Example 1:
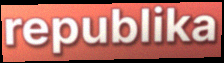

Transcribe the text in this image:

republika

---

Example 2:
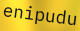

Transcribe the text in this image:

enipudu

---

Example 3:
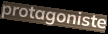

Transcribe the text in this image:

protagoniste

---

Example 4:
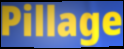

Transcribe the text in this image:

Pillage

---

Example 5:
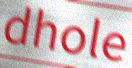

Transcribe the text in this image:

dhole